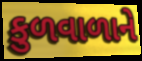
કુળવાળાને